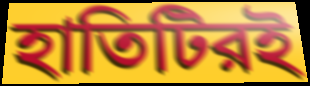
হাতিটিরই